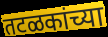
तटळकांच्या